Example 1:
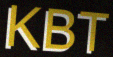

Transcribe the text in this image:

KBT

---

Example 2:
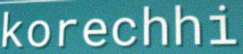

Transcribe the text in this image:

korechhi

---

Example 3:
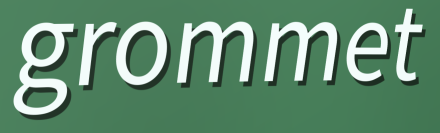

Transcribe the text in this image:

grommet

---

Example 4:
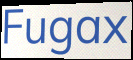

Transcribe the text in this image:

Fugax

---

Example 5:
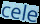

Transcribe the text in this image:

cele